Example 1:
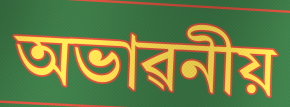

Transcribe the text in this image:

অভাৱনীয়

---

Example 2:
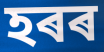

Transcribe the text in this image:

হৰৰ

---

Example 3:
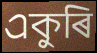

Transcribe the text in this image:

একুৰি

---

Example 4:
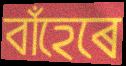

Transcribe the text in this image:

বাঁহেৰে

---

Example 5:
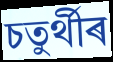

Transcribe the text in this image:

চতুৰ্থীৰ